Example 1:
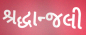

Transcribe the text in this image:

શ્રદ્ધાન્જલી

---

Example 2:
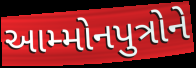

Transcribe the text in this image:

આમ્મોનપુત્રોને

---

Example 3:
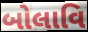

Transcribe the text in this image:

બોલાવિ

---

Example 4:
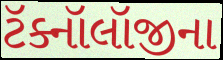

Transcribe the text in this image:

ટૅક્નૉલૉજીના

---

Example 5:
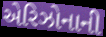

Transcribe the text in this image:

એરિઝોનાની